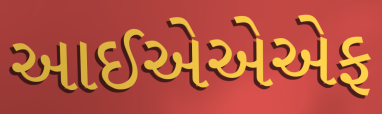
આઈએએએફ